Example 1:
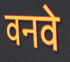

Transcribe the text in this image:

वनवे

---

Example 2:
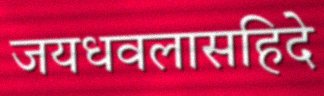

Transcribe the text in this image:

जयधवलासहिदे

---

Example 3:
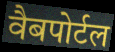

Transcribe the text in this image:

वैबपोर्टल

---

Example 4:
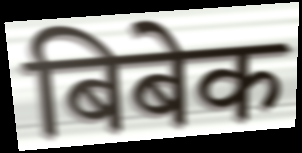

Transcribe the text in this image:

बिबेक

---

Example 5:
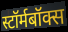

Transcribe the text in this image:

स्टॉर्मबॉक्स